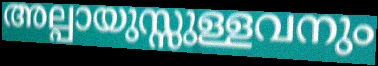
അല്പായുസ്സുള്ളവനും